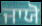
ਜਾਯੋ